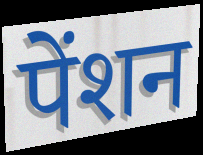
पेंशन